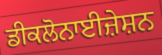
ਡੀਕਲੋਨਾਈਜ਼ੇਸ਼ਨ